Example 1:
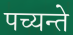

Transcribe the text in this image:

पच्यन्ते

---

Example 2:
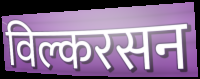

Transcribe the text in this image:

विल्करसन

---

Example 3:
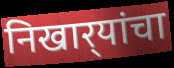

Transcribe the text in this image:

निखार्‍यांचा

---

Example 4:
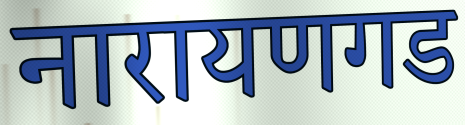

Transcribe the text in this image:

नारायणगड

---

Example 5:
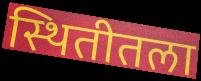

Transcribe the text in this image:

स्थितीतला